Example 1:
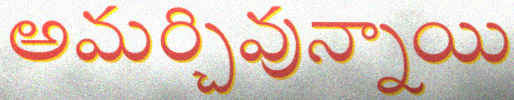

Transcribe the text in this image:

అమర్చివున్నాయి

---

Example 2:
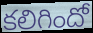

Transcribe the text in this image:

కలిగిందో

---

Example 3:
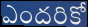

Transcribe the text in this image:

ఎందరికో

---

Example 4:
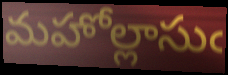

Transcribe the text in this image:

మహోల్లాసుఁ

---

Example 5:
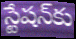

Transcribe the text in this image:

స్టేషన్‍కు